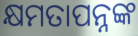
କ୍ଷମତାପନ୍ନଙ୍କ